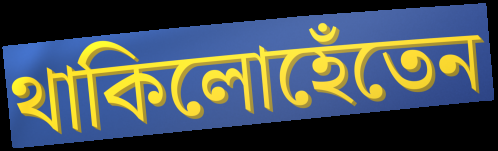
থাকিলোহেঁতেন